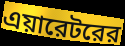
এয়ারেটরের